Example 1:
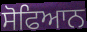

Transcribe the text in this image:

ਸੋਫਿਆਨ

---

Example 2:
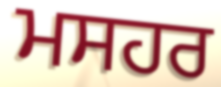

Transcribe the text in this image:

ਮਸਹਰ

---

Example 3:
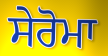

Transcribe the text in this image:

ਸੇਰੋਮਾ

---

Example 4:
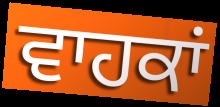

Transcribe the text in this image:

ਵਾਹਕਾਂ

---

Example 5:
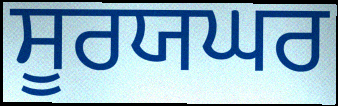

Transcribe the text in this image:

ਸੂਰਯਘਰ